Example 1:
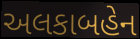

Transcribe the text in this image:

અલકાબહેન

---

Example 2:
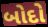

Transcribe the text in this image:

બોદો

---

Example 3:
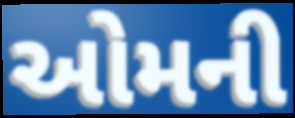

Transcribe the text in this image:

ઓમની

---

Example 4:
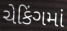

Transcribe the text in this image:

ચેકિંગમાં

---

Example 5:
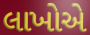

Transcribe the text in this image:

લાખોએ